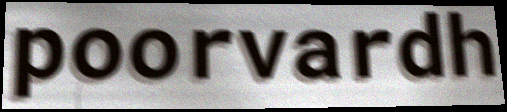
poorvardh